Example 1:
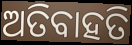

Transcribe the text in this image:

ଅତିବାହତି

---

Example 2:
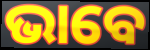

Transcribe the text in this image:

ଭାବେ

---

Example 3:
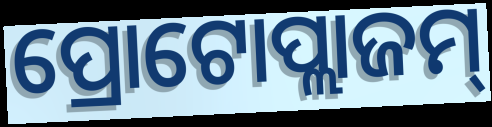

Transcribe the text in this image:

ପ୍ରୋଟୋପ୍ଲାଜମ୍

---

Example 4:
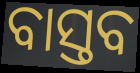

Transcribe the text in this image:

ବାସ୍ତବ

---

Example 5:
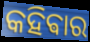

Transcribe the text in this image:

କହିଵାର